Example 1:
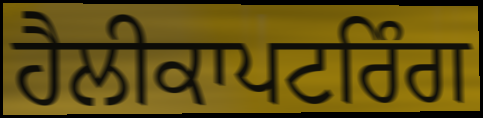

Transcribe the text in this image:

ਹੈਲੀਕਾਪਟਰਿੰਗ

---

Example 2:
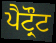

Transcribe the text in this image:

ਪੈਟ੍ਰੌਟ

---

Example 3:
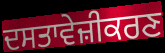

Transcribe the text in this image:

ਦਸਤਾਵੇਜ਼ੀਕਰਣ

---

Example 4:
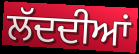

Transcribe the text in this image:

ਲੱਦਦੀਆਂ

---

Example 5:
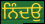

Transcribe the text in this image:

ਨਿੰਦਉ